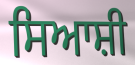
ਸਿਆਸ਼ੀ